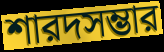
শারদসম্ভার